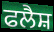
ਫਲੈਸ਼